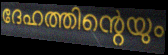
ദേഹത്തിന്റെയും